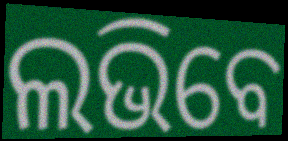
ଲଭିବେ